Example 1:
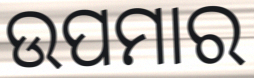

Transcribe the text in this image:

ଉପମାର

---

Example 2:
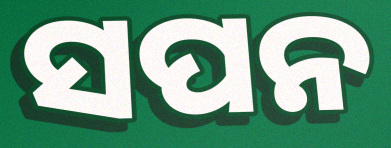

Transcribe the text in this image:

ସପନ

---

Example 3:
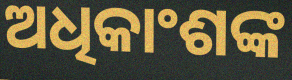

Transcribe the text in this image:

ଅଧିକାଂଶଙ୍କ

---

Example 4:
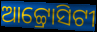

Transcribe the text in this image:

ଆଟ୍ଟ୍ରୋସିଟୀ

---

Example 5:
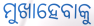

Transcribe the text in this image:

ମୁଖାହେବାକୁ